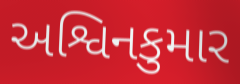
અશ્વિનકુમાર